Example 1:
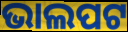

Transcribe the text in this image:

ଭାଲପଟ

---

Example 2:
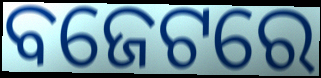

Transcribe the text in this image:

ବଜେଟରେ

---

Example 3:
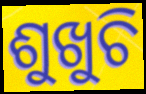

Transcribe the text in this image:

ଶୁଖୁଚି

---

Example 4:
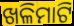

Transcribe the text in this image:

ଖଳିମାଟି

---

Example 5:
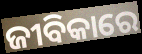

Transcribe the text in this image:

ଜୀବିକାରେ